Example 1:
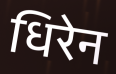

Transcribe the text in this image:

धिरेन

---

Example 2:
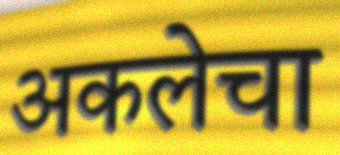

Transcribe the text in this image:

अकलेचा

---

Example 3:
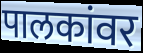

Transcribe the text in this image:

पालकांवर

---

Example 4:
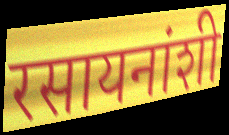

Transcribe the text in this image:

रसायनांशी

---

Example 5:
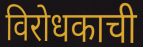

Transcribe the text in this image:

विरोधकाची